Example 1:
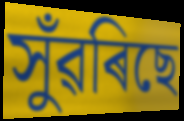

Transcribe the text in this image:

সুঁৱৰিছে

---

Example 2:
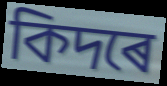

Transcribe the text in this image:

কিদৰে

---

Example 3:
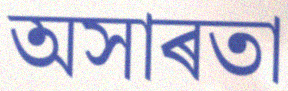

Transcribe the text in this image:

অসাৰতা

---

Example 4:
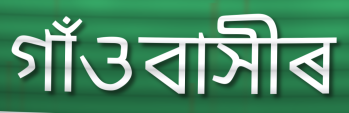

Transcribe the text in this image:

গাঁওবাসীৰ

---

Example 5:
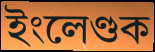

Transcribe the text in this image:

ইংলেণ্ডক